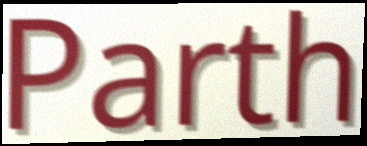
Parth